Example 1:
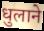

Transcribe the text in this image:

धुलाने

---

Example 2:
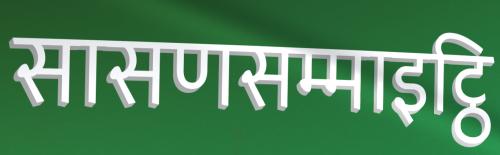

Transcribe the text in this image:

सासणसम्माइट्ठि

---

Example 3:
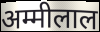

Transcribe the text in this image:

अम्मीलाल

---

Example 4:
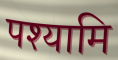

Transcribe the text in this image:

पश्यामि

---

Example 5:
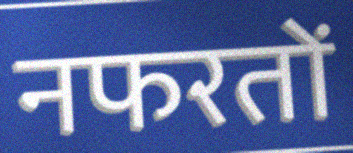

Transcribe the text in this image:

नफरतों